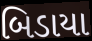
બિડાયા